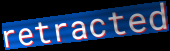
retracted